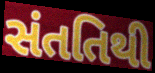
સંતતિથી